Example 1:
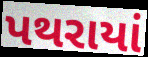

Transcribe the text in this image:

પથરાયાં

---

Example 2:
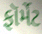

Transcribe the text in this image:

ફૉર્મેટ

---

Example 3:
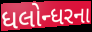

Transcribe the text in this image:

ધલોન્ધરના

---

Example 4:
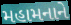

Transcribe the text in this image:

મહામનાને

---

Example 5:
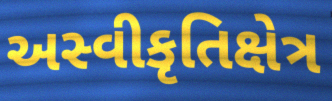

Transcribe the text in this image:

અસ્વીકૃતિક્ષેત્ર